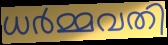
ധർമ്മവതി